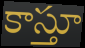
కాస్తూ